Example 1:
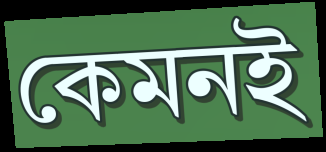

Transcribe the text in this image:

কেমনই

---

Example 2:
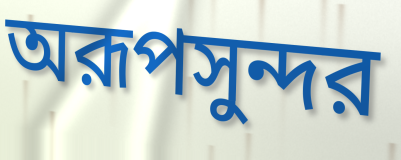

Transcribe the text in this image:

অরূপসুন্দর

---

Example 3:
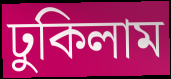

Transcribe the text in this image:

ঢুকিলাম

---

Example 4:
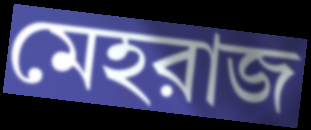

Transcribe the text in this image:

মেহরাজ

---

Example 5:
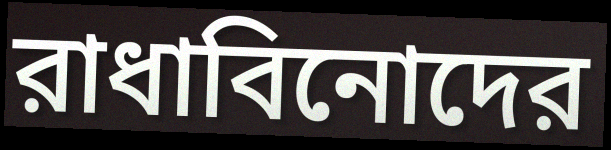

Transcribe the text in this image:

রাধাবিনোদের